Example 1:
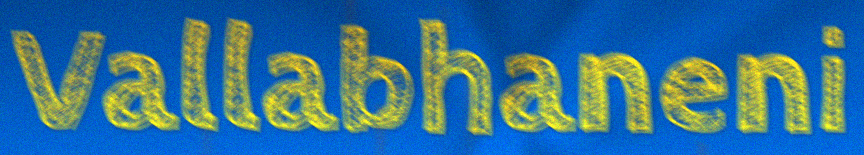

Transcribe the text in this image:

Vallabhaneni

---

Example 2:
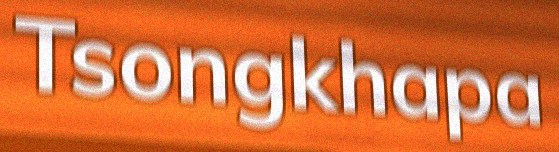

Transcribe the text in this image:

Tsongkhapa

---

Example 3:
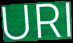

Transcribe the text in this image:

URI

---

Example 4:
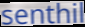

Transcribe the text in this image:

senthil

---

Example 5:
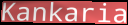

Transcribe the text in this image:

Kankaria